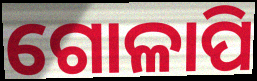
ଗୋଳାପି